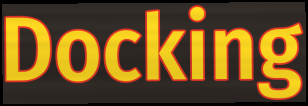
Docking